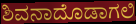
ಶಿವನಾದೊಡಾಗಲಿ